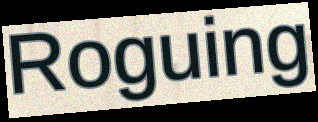
Roguing